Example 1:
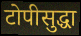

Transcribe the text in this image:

टोपीसुद्धा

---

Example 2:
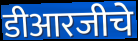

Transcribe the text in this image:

डीआरजीचे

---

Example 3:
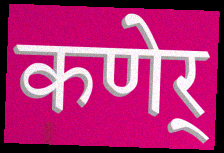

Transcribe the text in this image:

कणेर्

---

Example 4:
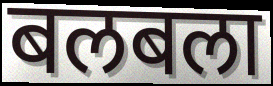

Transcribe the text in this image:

बलबला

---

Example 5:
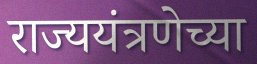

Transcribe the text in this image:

राज्ययंत्रणेच्या